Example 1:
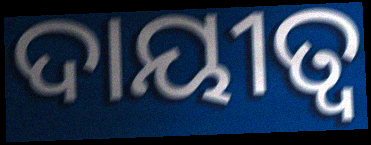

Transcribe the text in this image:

ଦାୟୀତ୍ୱ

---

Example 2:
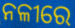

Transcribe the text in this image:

ନଳୀରେ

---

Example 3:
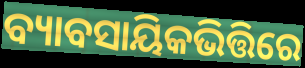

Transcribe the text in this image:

ବ୍ୟାବସାୟିକଭିତ୍ତିରେ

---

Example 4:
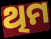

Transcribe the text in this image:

ଥିମ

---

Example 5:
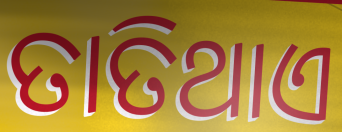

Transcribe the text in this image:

ତାତିଥାଏ